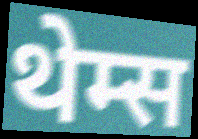
थेम्स